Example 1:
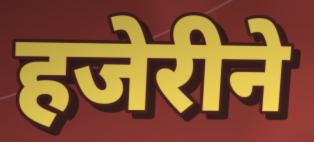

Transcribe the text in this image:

हजेरीने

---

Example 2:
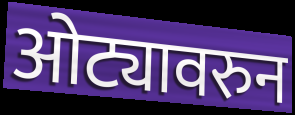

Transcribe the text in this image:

ओट्यावरुन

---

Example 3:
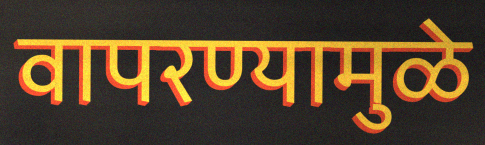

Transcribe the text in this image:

वापरण्यामुळे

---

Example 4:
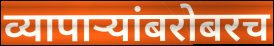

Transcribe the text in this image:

व्यापाऱ्यांबरोबरच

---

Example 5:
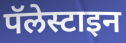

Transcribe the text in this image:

पॅलेस्टाइन